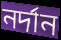
নর্দান